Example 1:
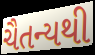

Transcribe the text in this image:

ચૈતન્યથી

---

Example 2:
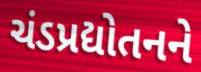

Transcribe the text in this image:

ચંડપ્રદ્યોતનને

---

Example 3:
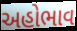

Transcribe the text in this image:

અહોભાવ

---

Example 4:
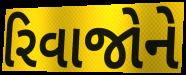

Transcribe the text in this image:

રિવાજોને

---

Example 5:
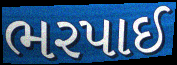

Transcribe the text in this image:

ભરપાઈ